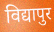
विद्यापुर